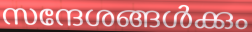
സന്ദേശങ്ങൾക്കും